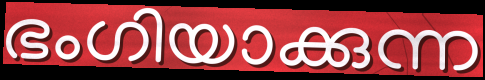
ഭംഗിയാക്കുന്ന